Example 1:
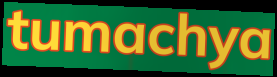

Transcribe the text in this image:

tumachya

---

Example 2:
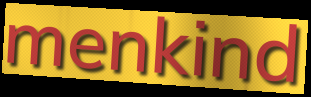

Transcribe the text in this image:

menkind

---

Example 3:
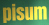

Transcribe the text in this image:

pisum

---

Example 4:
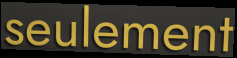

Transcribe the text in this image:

seulement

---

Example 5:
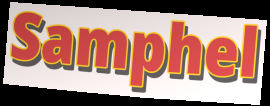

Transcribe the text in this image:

Samphel